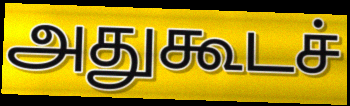
அதுகூடச்